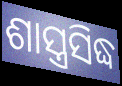
ଶାସ୍ତ୍ରସିଦ୍ଧ